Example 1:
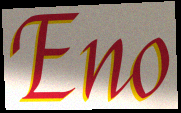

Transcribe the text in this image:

Eno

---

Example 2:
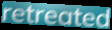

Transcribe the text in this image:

retreated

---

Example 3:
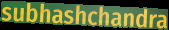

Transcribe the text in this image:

subhashchandra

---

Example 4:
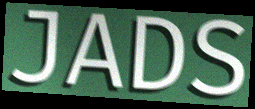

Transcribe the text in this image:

JADS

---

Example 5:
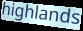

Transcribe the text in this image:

highlands